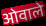
ओवाले